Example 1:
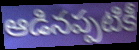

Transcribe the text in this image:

ఆడినప్పటికీ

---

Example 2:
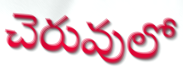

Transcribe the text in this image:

చెరువులో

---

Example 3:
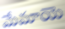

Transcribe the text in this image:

మేమాయె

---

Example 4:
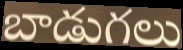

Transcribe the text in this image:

బాడుగలు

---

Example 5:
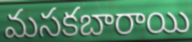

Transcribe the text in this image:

మసకబారాయి